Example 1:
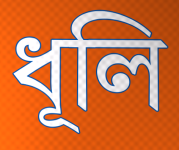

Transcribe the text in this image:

ধূলি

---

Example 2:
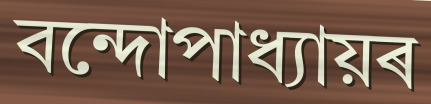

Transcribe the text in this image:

বন্দোপাধ্যায়ৰ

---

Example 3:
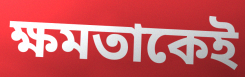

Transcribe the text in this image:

ক্ষমতাকেই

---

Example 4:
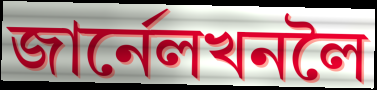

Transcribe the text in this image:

জাৰ্নেলখনলৈ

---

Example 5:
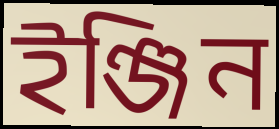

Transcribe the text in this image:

ইঞ্জিন